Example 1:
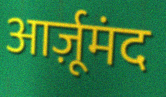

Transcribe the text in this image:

आर्ज़ूमंद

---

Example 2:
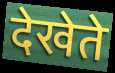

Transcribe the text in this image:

देखेते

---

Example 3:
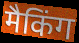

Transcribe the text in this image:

मैकिंग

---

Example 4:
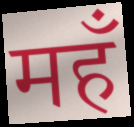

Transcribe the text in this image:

महँ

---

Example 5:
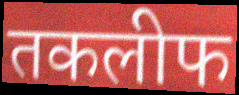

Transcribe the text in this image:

तकलीफ